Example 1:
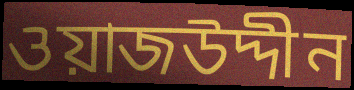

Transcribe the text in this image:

ওয়াজউদ্দীন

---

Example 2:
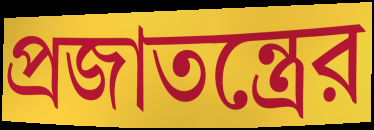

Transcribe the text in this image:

প্রজাতন্ত্রের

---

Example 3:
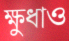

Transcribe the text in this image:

ক্ষুধাও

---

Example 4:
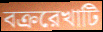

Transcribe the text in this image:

বক্ররেখাটি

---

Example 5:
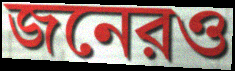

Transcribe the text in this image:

জনেরও